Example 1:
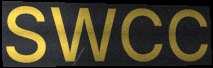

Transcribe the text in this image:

SWCC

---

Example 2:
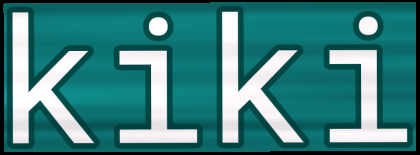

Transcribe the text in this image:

kiki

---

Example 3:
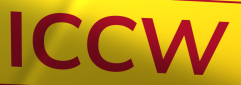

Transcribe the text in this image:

ICCW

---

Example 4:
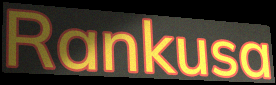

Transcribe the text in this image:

Rankusa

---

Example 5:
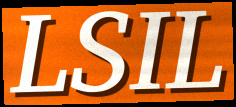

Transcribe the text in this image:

LSIL